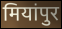
मियांपुर